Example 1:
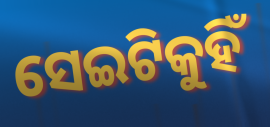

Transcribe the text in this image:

ସେଇଟିକୁହିଁ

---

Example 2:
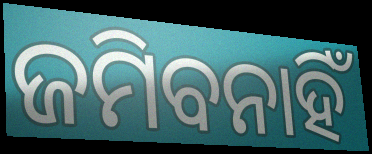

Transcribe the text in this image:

ଜମିବନାହିଁ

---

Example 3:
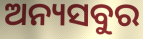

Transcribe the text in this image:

ଅନ୍ୟସବୁର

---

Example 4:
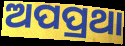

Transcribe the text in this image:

ଅପପ୍ରଥା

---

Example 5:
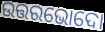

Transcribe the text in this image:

ଉତ୍ତରଭୋଦୋ